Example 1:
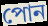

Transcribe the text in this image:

পোন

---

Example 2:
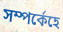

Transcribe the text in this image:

সম্পৰ্কেহে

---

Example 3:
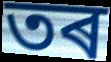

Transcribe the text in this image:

তৰ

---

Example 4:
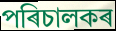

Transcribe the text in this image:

পৰিচালকৰ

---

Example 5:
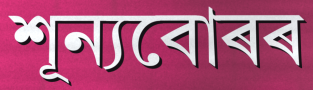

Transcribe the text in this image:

শূন্যবোৰৰ